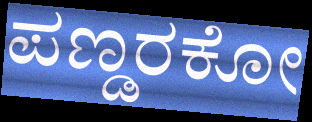
ಪಣ್ಡರಕೋ